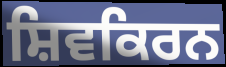
ਸ਼ਿਵਕਿਰਨ